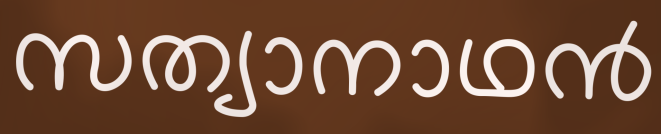
സത്യാനാഥൻ